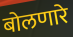
बोलणारे